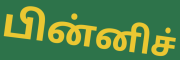
பின்னிச்